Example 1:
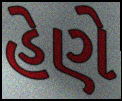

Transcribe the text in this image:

હેણે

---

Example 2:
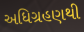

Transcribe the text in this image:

અધિગ્રહણથી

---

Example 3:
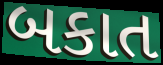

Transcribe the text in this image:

બકાત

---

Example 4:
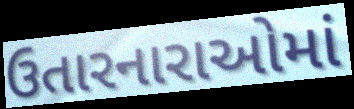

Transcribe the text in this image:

ઉતારનારાઓમાં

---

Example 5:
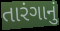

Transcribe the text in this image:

તારંગાનું